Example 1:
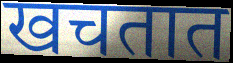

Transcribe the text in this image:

खचतात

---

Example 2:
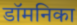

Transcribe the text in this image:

डॉमनिका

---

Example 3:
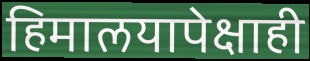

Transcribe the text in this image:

हिमालयापेक्षाही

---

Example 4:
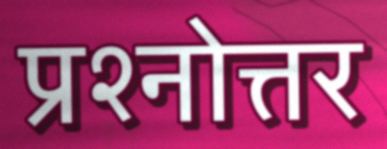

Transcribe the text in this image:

प्रश्नोत्तर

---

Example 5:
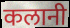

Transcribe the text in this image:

कलानी